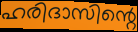
ഹരിദാസിന്റെ